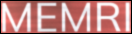
MEMRI